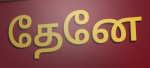
தேனே